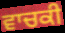
ਵਾਚਕੀ